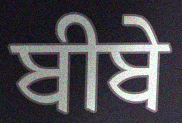
ਬੀਬੇ